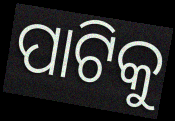
ପାଟିକୁ